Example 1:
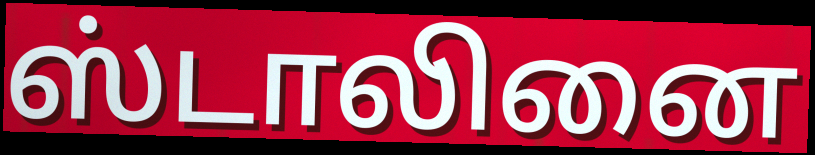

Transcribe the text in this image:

ஸ்டாலினை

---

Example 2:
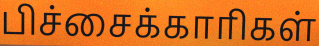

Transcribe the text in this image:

பிச்சைக்காரிகள்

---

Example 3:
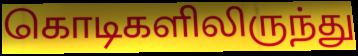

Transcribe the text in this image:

கொடிகளிலிருந்து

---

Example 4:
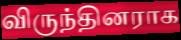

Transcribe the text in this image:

விருந்தினராக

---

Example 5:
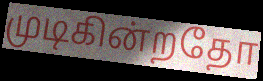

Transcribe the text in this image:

முடிகின்றதோ